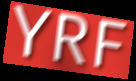
YRF